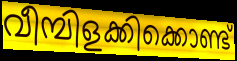
വീമ്പിളക്കിക്കൊണ്ട്